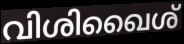
വിശിഖൈശ്